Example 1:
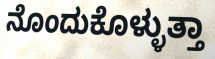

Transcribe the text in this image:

ನೊಂದುಕೊಳ್ಳುತ್ತಾ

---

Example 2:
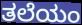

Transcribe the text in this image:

ತಲೆಯಂ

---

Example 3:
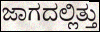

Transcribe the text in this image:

ಜಾಗದಲ್ಲಿತ್ತು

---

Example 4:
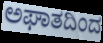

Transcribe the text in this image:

ಅಘಾತದಿಂದ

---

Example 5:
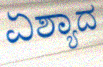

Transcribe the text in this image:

ಏಶ್ಯಾದ